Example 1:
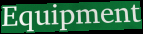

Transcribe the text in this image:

Equipment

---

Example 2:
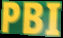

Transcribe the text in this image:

PBI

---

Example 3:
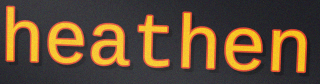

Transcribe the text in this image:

heathen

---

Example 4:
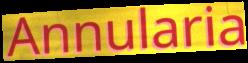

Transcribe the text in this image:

Annularia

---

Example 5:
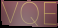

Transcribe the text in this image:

VQE